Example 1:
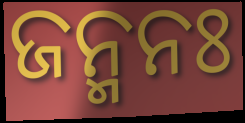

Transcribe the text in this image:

ଜନ୍ମନଃ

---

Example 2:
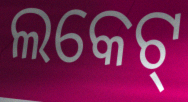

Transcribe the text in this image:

ଲକେଟ୍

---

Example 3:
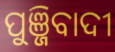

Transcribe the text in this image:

ପୁଞ୍ଜିବାଦୀ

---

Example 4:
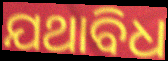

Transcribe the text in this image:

ଯଥାବିଧ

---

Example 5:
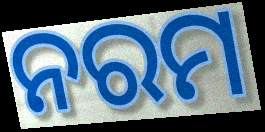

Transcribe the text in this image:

ନରମ